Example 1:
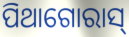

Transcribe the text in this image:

ପିଥାଗୋରାସ୍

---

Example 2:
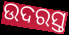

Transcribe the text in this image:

ଉଦରସ୍ତ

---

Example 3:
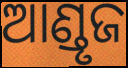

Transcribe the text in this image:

ଆଣ୍ଡୃଜ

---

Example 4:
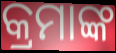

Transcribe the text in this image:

କ୍ରମାଙ୍କ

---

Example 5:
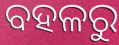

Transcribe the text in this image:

ବହଳରୁ